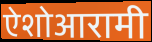
ऐशोआरामी